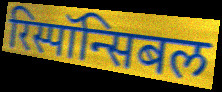
रिस्पॉन्सिबल